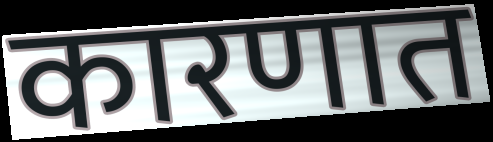
कारणात